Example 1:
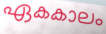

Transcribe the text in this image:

ഏകകാലം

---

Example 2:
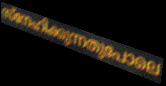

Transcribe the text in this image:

സ്നേഹിക്കുന്നതുപോലെ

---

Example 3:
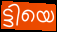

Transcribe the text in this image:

ട്ടിയെ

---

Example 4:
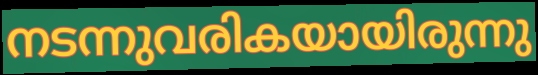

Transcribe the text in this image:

നടന്നുവരികയായിരുന്നു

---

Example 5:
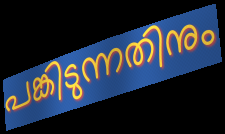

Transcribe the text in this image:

പങ്കിടുന്നതിനും